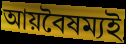
আয়বৈষম্যই